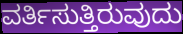
ವರ್ತಿಸುತ್ತಿರುವುದು